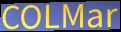
COLMar